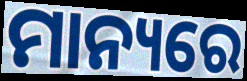
ମାନ୍ୟରେ